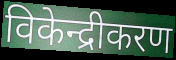
विकेन्द्रीकरण